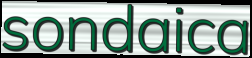
sondaica